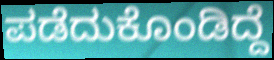
ಪಡೆದುಕೊಂಡಿದ್ದೆ